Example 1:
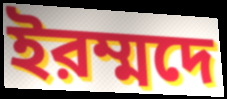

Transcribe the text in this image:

ইরম্মদে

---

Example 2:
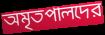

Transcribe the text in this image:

অমৃতপালদের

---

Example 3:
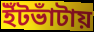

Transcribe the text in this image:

ইঁটভাঁটায়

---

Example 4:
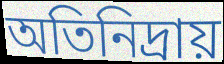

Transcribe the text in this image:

অতিনিদ্রায়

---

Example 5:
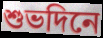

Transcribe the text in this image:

শুভদিনে